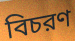
বিচরণ